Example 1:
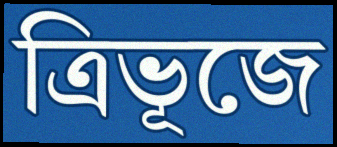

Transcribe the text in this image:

ত্ৰিভূজে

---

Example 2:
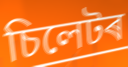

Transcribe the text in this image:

চিলেটৰ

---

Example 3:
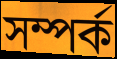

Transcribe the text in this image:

সম্পৰ্ক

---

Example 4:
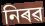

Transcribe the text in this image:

নিৰৱ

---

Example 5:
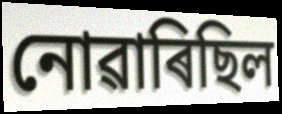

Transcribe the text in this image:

নোৱাৰিছিল